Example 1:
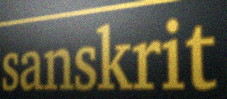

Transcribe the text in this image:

sanskrit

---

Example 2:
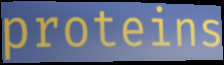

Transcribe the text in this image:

proteins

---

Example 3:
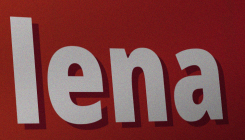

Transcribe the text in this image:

lena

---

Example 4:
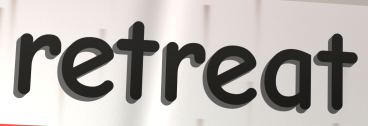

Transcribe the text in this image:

retreat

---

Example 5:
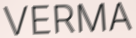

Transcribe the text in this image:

VERMA